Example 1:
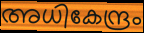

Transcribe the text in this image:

അധികേന്ദ്രം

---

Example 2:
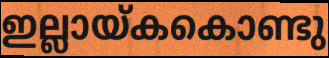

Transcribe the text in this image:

ഇല്ലായ്കകൊണ്ടു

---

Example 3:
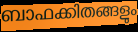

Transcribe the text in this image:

ബാഫക്കിതങ്ങളും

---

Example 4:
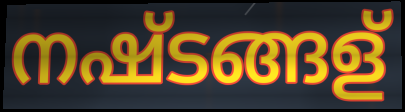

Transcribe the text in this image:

നഷ്ടങ്ങള്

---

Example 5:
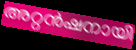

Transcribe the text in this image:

അറ്റൻഷനായി